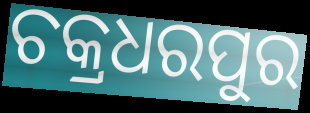
ଚକ୍ରଧରପୁର